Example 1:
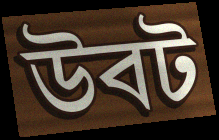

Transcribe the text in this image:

উবট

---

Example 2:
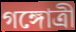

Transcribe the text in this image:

গঙ্গোত্রী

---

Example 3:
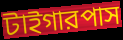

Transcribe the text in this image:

টাইগারপাস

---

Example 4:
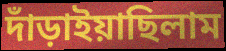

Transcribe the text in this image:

দাঁড়াইয়াছিলাম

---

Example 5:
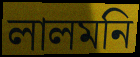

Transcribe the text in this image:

লালমনি